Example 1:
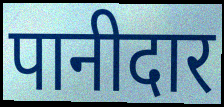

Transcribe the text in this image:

पानीदार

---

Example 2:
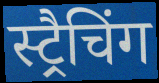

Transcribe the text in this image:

स्ट्रैचिंग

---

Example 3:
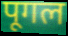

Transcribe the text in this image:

पूगल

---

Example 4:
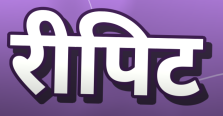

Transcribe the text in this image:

रीपिट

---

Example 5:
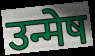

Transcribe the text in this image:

उन्मेष